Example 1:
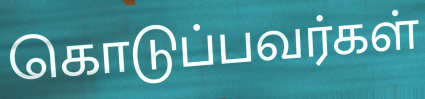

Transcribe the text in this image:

கொடுப்பவர்கள்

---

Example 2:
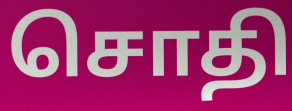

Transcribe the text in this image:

சொதி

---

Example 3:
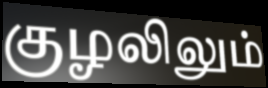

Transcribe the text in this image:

குழலிலும்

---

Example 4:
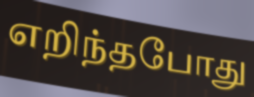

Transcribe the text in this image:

எறிந்தபோது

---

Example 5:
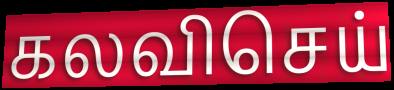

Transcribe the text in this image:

கலவிசெய்